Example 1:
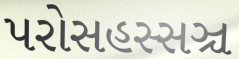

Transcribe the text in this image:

પરોસહસ્સઞ્ચ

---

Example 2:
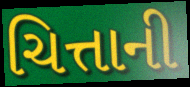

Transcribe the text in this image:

ચિત્તાની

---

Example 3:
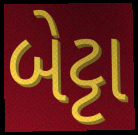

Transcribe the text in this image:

બેટ્ટા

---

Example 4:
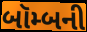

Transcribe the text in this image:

બૉમ્બની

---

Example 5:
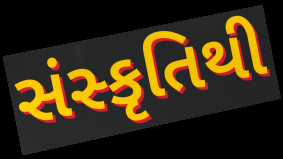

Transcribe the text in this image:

સંસ્કૃતિથી